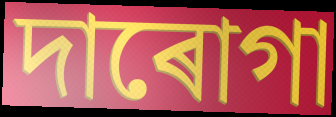
দাৰোগা